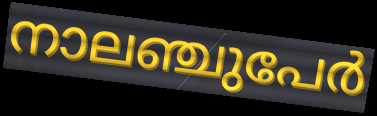
നാലഞ്ചുപേർ